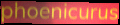
phoenicurus